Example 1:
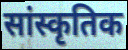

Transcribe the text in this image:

सांस्कृतिक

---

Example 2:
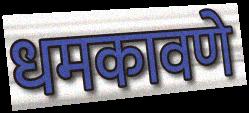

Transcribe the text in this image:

धमकावणे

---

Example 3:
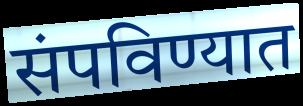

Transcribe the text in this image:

संपविण्यात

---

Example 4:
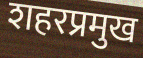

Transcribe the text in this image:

शहरप्रमुख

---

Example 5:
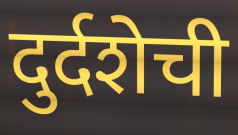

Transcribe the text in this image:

दुर्दशेची